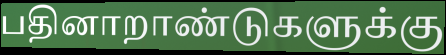
பதினாறாண்டுகளுக்கு